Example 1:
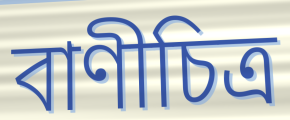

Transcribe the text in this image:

বাণীচিত্র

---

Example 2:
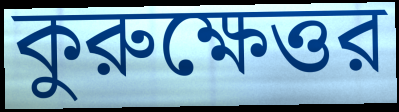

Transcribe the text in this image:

কুরুক্ষেত্তর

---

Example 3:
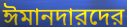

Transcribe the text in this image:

ঈমানদারদের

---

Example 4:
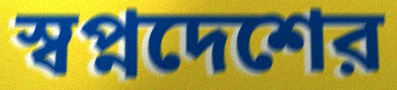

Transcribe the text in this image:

স্বপ্নদেশের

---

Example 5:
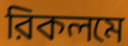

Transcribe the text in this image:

রিকলমে